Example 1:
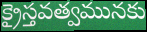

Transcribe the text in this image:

క్రైస్తవత్వమునకు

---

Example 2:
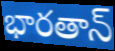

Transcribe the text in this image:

భారతాన్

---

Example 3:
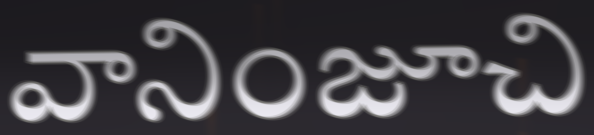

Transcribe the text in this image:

వానింజూచి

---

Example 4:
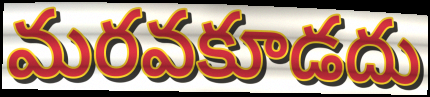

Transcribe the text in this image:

మరవకూడదు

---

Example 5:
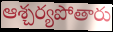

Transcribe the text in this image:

ఆశ్చర్యపోతారు